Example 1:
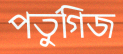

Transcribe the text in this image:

পর্তুগিজ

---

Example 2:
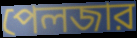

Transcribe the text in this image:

পেলজার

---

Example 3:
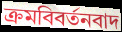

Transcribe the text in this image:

ক্রমবিবর্তনবাদ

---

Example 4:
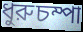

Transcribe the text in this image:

ধুরুচম্পা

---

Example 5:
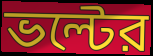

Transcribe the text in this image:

ভল্টের